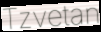
Tzvetan